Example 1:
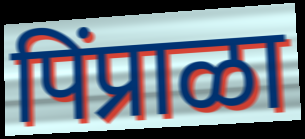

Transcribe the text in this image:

पिंप्राळा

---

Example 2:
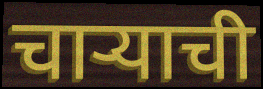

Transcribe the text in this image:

चाऱ्याची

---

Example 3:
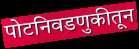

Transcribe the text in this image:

पोटनिवडणुकीतून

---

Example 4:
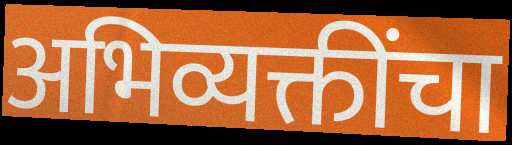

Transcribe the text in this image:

अभिव्यक्तींचा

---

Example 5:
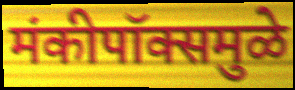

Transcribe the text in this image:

मंकीपॉक्समुळे